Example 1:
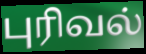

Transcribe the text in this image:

புரிவல்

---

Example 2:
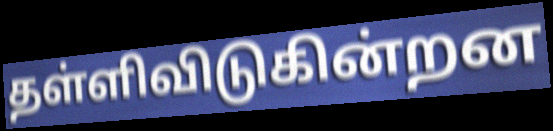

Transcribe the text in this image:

தள்ளிவிடுகின்றன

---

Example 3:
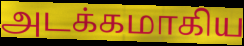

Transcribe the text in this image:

அடக்கமாகிய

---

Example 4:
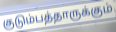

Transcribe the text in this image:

குடும்பத்தாருக்கும்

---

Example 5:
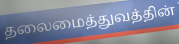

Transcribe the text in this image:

தலைமைத்துவத்தின்